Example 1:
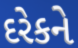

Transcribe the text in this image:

દરેકને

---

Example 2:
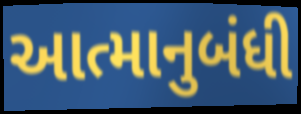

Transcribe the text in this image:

આત્માનુબંધી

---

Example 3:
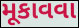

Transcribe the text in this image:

મૂકાવવા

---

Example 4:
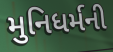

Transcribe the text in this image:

મુનિધર્મની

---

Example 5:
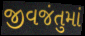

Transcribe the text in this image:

જીવજંતુમાં